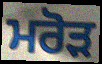
ਮਰੋੜ